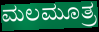
ಮಲಮೂತ್ರ